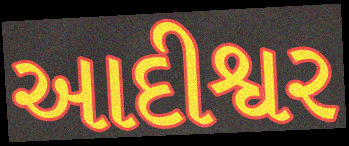
આદીશ્વર